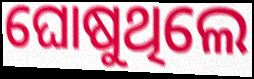
ଘୋଷୁଥିଲେ